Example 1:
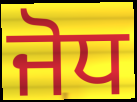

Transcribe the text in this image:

ਜੋਧ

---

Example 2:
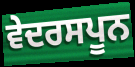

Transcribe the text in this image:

ਵੇਦਰਸਪੂਨ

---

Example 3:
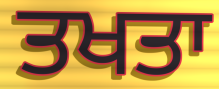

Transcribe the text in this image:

ਤਖਤਾ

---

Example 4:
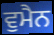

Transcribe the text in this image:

ਵੁਮੈਨ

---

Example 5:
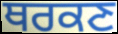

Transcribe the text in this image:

ਥਰਕਣ